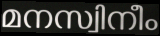
മനസ്വിനീം